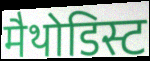
मैथोडिस्ट